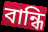
বান্ধি